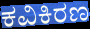
ಕವಿಕಿರಣ